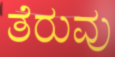
ತೆರುವು